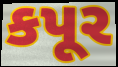
કપૂર